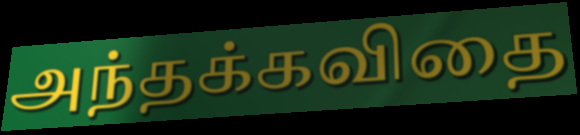
அந்தக்கவிதை